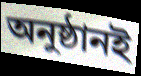
অনুষ্ঠানই